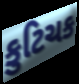
કુટિચક